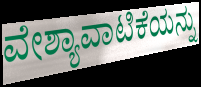
ವೇಶ್ಯಾವಾಟಿಕೆಯನ್ನು